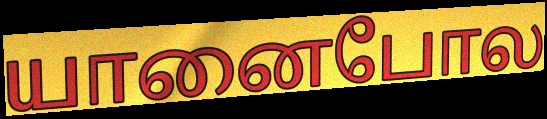
யானைபோல